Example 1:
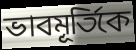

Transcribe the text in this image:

ভাবমূর্তিকে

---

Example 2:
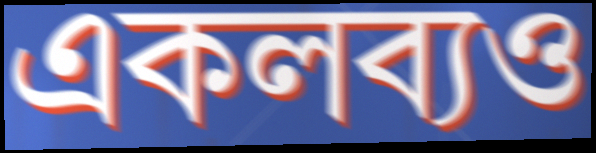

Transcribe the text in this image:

একলব্যও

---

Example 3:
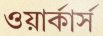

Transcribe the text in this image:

ওয়ার্কার্স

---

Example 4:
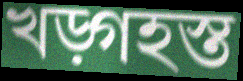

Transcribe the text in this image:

খড়্গহস্ত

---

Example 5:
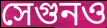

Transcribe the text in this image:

সেগুনও